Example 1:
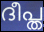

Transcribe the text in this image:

ദീപ്ത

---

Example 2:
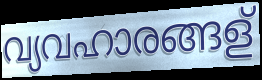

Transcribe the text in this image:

വ്യവഹാരങ്ങള്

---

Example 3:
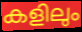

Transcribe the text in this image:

കളിലും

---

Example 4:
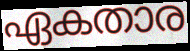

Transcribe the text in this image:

ഏകതാര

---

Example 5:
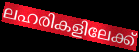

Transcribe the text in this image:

ലഹരികളിലേക്ക്